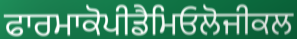
ਫਾਰਮਾਕੋਪੀਡੈਮਿਓਲੋਜੀਕਲ